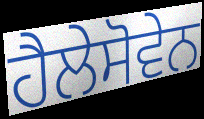
ਹੈਲੇਸੋਵੇਨ